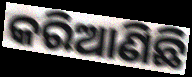
କରିଆଣିଛି